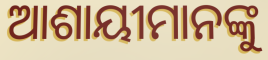
ଆଶାୟୀମାନଙ୍କୁ